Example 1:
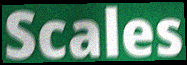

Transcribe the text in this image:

Scales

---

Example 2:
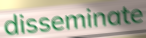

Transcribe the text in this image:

disseminate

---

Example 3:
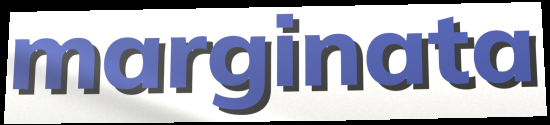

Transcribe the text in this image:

marginata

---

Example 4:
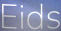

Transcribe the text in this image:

Eids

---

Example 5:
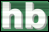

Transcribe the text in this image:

hb